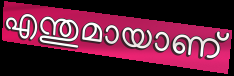
എന്തുമായാണ്